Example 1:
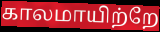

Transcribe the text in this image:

காலமாயிற்றே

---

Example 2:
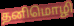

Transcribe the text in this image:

தனிமொழி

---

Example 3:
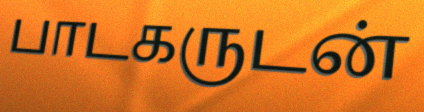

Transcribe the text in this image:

பாடகருடன்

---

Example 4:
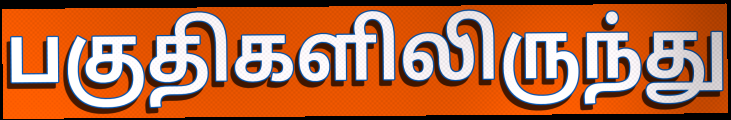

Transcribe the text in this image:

பகுதிகளிலிருந்து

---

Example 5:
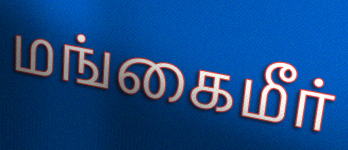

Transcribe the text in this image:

மங்கைமீர்